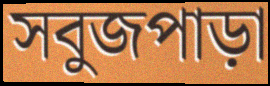
সবুজপাড়া